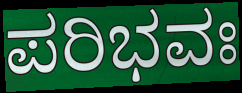
ಪರಿಭವಃ